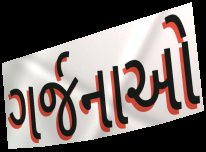
ગર્જનાઓ